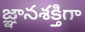
జ్ఞానశక్తిగా